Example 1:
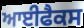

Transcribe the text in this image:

ਆਈਫੈਕਸ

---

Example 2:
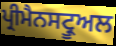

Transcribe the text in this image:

ਪ੍ਰੀਮੈਨਸਟ੍ਰੂਅਲ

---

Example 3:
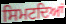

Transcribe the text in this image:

ਸਿਮਟਦਿਆਂ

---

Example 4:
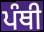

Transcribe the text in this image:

ਪੰਥੀ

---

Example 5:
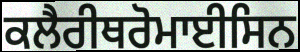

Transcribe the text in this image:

ਕਲੈਰੀਥਰੋਮਾਈਸਿਨ